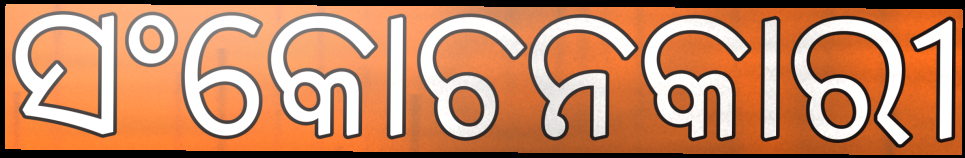
ସଂକୋଚନକାରୀ